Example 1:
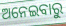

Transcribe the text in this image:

ଅନେଇବାରୁ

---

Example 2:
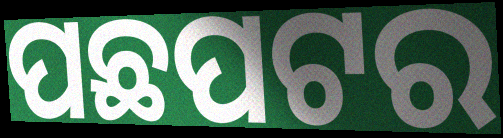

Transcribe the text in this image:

ପଛପଟର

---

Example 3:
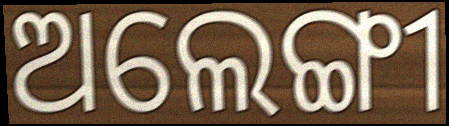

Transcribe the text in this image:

ଅଲେଙ୍ଗୀ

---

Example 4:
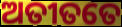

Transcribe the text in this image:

ଅତୀତତେ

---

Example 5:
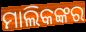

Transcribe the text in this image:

ମାଲିକଙ୍କର